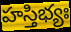
హస్తిభ్యః